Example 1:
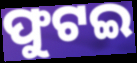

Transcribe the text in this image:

ଫୁଟଇ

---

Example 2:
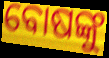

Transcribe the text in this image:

ବୋଷଙ୍କୁ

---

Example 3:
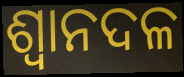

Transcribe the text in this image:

ଶ୍ୱାନଦଳ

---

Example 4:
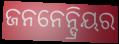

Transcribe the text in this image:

ଜନନେନ୍ଦ୍ରିୟର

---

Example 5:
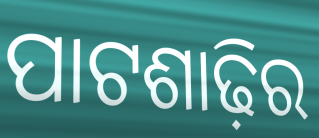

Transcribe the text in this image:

ପାଟଶାଢ଼ିର